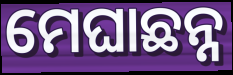
ମେଘାଛନ୍ନ